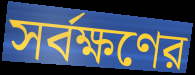
সর্বক্ষণের